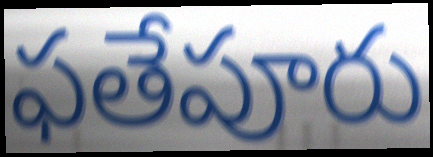
ఫతేపూరు